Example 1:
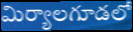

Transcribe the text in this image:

మిర్యాలగూడలో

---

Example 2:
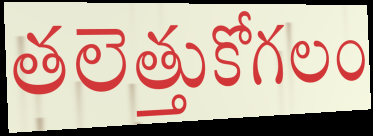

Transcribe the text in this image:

తలెత్తుకోగలం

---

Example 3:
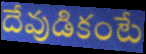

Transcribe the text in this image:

దేవుడికంటే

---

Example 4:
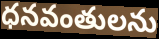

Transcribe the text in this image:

ధనవంతులను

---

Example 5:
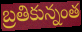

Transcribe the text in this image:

బ్రతికున్నంత